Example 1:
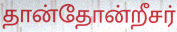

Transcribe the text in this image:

தான்தோன்றீசர்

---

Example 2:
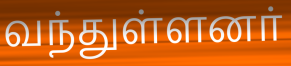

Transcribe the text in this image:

வந்துள்ளனர்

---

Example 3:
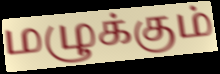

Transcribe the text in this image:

மழுக்கும்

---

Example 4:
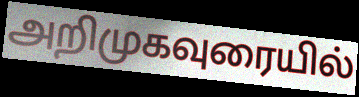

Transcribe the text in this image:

அறிமுகவுரையில்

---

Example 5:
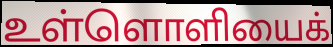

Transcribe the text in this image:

உள்ளொளியைக்